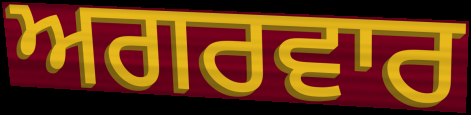
ਅਗਰਵਾਰ